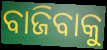
ବାଜିବାକୁ